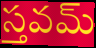
స్తవమ్